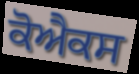
ਕੋਐਕਸ